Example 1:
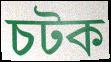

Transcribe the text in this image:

চটক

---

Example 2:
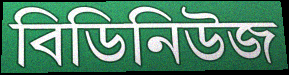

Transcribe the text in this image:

বিডিনিউজ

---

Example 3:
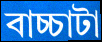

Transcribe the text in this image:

বাচ্চাটা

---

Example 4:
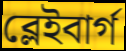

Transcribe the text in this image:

ব্লেইবার্গ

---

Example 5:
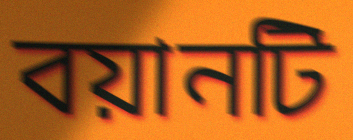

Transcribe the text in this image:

বয়ানটি